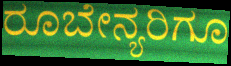
ರೂಬೇನ್ಯರಿಗೂ